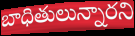
బాధితులున్నారని